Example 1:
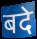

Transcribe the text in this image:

बदे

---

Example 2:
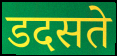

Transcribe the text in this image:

डदसते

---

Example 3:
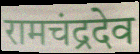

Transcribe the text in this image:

रामचंद्रदेव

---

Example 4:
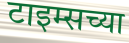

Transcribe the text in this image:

टाइम्सच्या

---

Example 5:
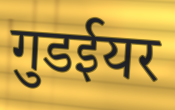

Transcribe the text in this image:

गुडईयर